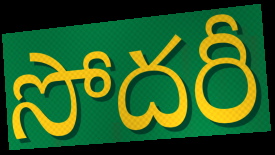
సోదరీ